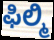
ಫಿಲ್ಮಿ